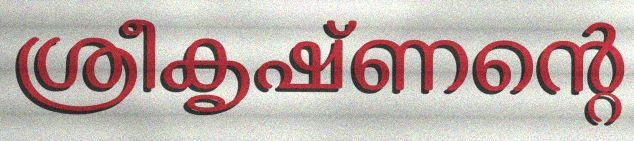
ശ്രീകൃഷ്‌ണന്റെ